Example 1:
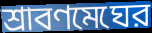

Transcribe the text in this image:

শ্রাবণমেঘের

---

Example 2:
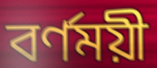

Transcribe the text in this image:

বর্ণময়ী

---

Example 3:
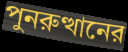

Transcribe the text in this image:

পুনরুত্থানের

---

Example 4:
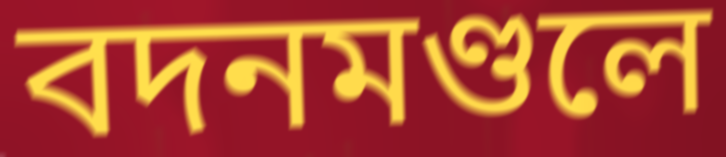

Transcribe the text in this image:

বদনমণ্ডলে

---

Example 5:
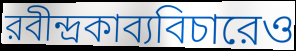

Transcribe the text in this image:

রবীন্দ্রকাব্যবিচারেও